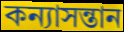
কন্যাসন্তান